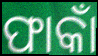
ଫାକାଁ